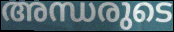
അന്ധരുടെ